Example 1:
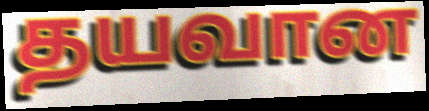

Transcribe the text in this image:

தயவான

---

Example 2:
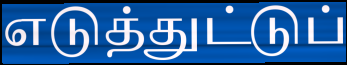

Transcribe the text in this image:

எடுத்துட்டுப்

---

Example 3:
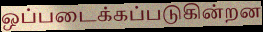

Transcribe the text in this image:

ஒப்படைக்கப்படுகின்றன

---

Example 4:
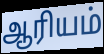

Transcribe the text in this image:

ஆரியம்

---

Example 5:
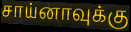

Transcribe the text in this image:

சாய்னாவுக்கு